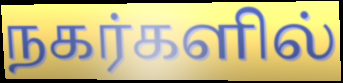
நகர்களில்